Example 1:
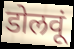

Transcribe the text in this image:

डोलवूं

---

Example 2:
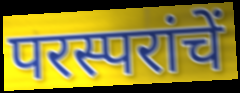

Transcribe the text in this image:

परस्परांचें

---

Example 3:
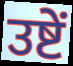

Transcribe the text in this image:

उष्टें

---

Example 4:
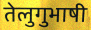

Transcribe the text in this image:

तेलुगुभाषी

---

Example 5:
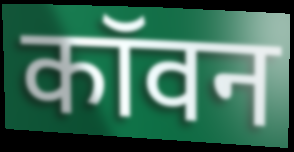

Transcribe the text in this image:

कॉवन